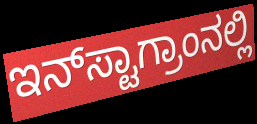
ಇನ್‌ಸ್ಟಾಗ್ರಾಂನಲ್ಲಿ